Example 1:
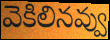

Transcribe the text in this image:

వెకిలినవ్వు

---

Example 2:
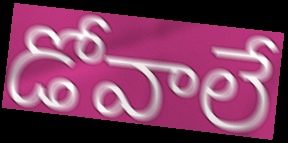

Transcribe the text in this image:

డోవాలే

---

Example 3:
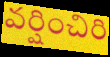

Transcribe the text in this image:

వర్షించిరి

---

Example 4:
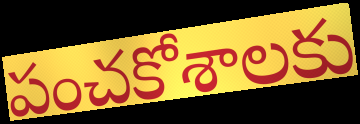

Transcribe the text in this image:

పంచకోశాలకు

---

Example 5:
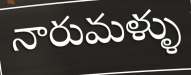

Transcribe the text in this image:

నారుమళ్ళు